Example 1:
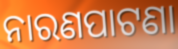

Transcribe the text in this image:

ନାରଣପାଟଣା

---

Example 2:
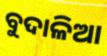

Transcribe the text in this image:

ବୁଦାଳିଆ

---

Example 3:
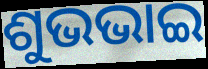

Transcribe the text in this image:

ଶୁଭଭାଇ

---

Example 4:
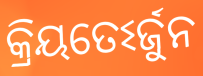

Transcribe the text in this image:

କ୍ରିୟତେଽର୍ଜୁନ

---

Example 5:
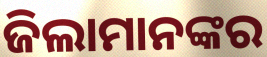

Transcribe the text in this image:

ଜିଲାମାନଙ୍କର